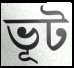
ভূট